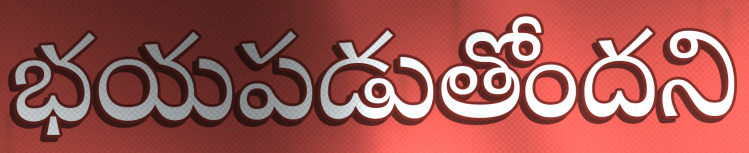
భయపడుతోందని